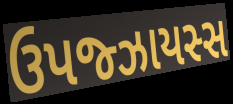
ઉપજ્ઝાયસ્સ